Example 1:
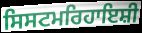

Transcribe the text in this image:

ਸਿਸਟਮਰਿਹਾਇਸ਼ੀ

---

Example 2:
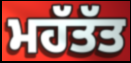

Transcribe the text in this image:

ਮਹੱਤੱਤ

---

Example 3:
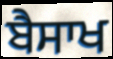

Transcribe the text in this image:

ਬੈਸਾਖ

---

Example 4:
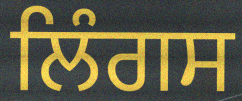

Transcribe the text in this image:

ਲਿੰਗਸ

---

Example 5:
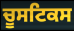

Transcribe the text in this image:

ਚੂਸਟਿਕਸ